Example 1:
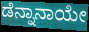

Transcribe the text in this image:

ಡೆನ್ನಾನಾಯೇ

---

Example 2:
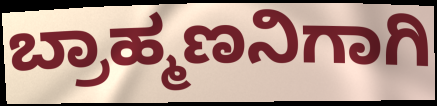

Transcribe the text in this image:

ಬ್ರಾಹ್ಮಣನಿಗಾಗಿ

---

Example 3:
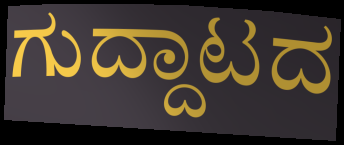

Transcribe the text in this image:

ಗುದ್ದಾಟದ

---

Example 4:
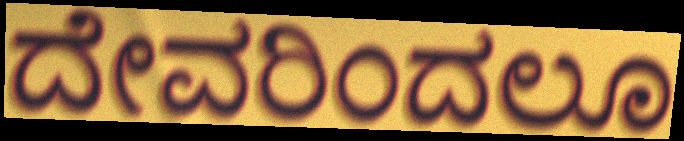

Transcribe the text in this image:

ದೇವರಿಂದಲೂ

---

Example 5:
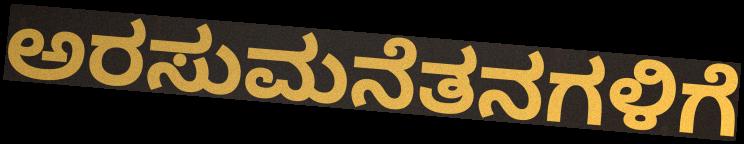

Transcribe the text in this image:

ಅರಸುಮನೆತನಗಳಿಗೆ